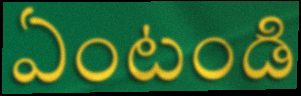
ఏంటండి